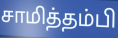
சாமித்தம்பி